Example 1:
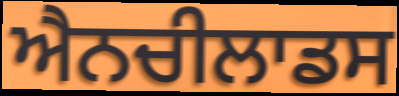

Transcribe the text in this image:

ਐਨਚੀਲਾਡਸ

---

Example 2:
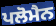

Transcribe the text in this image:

ਪਲੋਮੈਨ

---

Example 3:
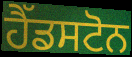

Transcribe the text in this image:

ਹੈੱਡਸਟੋਨ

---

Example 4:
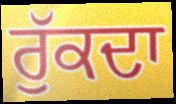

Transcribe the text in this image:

ਰੁੱਕਦਾ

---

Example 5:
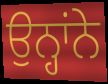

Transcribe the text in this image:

ਉਨ੍ਹਾਂਨੇ